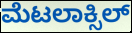
ಮೆಟಲಾಕ್ಸಿಲ್